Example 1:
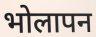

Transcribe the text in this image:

भोलापन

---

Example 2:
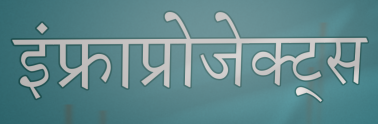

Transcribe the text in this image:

इंफ्राप्रोजेक्ट्स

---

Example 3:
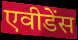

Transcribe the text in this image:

एवीडेंस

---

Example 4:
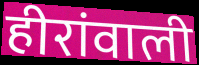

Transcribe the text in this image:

हीरांवाली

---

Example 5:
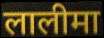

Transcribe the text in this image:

लालीमा